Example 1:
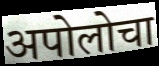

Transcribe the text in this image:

अपोलोचा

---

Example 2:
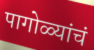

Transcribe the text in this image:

पागोळ्यांचं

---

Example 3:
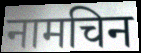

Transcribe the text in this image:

नामचिन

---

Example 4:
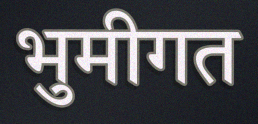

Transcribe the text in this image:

भुमीगत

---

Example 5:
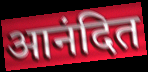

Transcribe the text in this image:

आनंदित